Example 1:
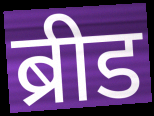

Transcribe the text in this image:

ब्रीड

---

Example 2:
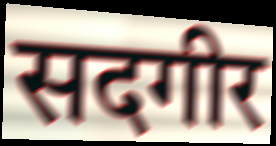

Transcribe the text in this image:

सदगीर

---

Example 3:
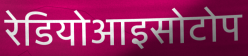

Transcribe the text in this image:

रेडियोआइसोटोप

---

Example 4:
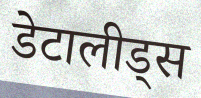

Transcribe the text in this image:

डेटालीड्स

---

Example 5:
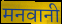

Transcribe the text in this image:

मनवानी